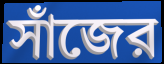
সাঁজের